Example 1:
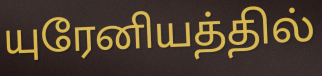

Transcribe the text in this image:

யுரேனியத்தில்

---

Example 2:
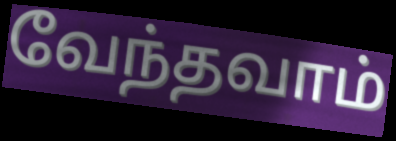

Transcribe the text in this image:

வேந்தவாம்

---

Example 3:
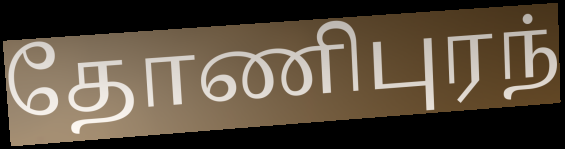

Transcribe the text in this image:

தோணிபுரந்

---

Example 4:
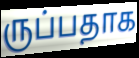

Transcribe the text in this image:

ருப்பதாக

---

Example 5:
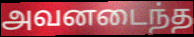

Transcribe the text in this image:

அவனடைந்த